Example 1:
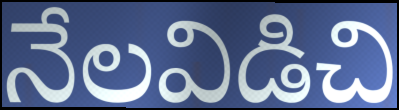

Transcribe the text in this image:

నేలవిడిచి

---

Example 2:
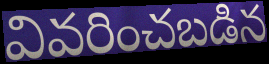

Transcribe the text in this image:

వివరించబడిన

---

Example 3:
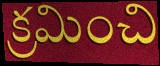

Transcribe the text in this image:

క్రమించి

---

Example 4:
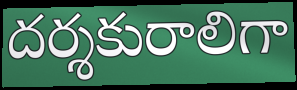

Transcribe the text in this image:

దర్శకురాలిగా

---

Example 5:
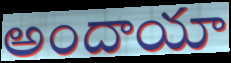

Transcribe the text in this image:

అందాయా